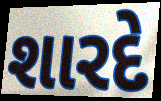
શારદે